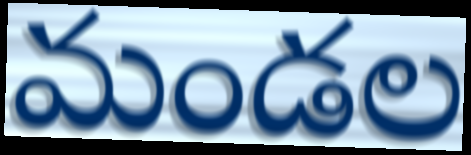
మండల